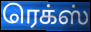
ரெக்ஸ்